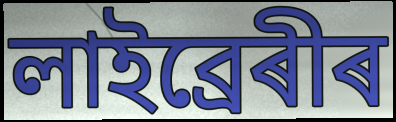
লাইব্ৰেৰীৰ